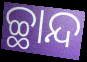
ଚ୍ଛାନ୍ଦ